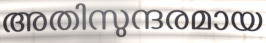
അതിസുന്ദരമായ